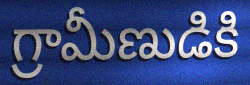
గ్రామీణుడికి